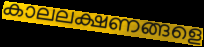
കാലലക്ഷണങ്ങളെ